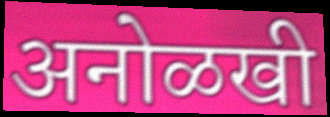
अनोळखी